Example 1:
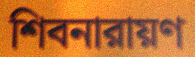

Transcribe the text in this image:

শিবনারায়ণ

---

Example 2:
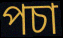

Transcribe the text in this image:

পচা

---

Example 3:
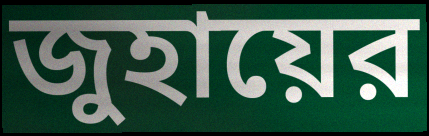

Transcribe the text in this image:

জুহায়ের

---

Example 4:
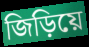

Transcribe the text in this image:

জিড়িয়ে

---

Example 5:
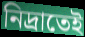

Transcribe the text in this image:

নিদ্রাতেই